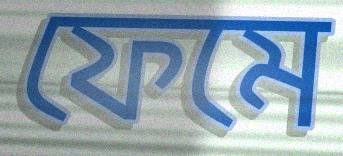
ফেমে